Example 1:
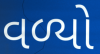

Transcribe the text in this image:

વળ્યો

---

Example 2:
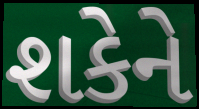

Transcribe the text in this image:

શકેને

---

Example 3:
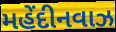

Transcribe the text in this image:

મહેંદીનવાઝ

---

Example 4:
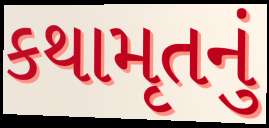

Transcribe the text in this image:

કથામૃતનું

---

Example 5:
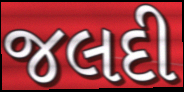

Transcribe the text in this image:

જલદી